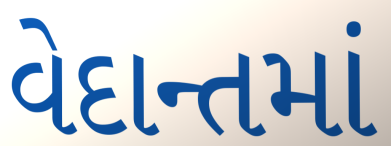
વેદાન્તમાં